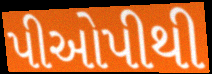
પીઓપીથી